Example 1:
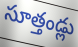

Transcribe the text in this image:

సూత్తండ్లు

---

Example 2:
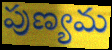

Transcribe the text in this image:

పుణ్యమ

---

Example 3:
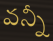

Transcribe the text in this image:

వన్నీ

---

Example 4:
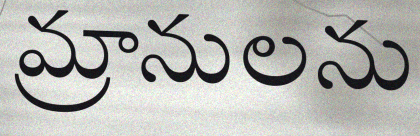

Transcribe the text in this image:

మ్రానులను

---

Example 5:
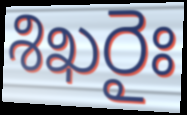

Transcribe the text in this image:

శిఖరైః